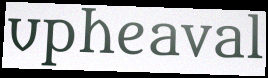
upheaval